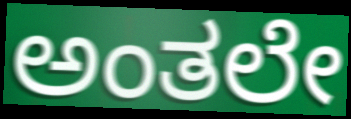
ಅಂತಲೇ